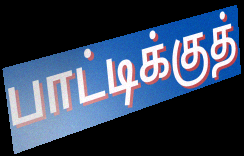
பாட்டிக்குத்